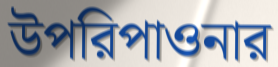
উপরিপাওনার